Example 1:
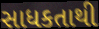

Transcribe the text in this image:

સાધકતાથી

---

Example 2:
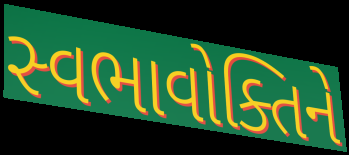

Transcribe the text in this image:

સ્વભાવોક્તિને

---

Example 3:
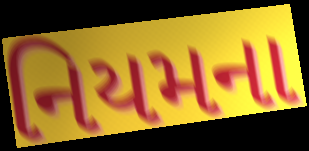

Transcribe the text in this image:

નિયમના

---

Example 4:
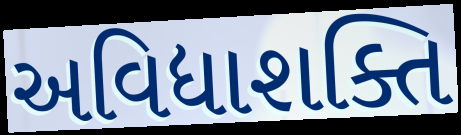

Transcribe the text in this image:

અવિદ્યાશક્તિ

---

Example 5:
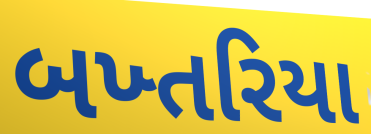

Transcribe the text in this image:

બખ્તરિયા